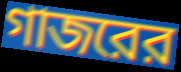
গাজরের